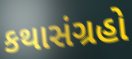
કથાસંગ્રહો